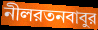
নীলরতনবাবুর